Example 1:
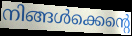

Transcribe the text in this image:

നിങ്ങൾക്കെന്റെ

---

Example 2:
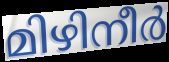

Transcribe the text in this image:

മിഴിനീർ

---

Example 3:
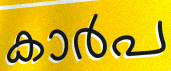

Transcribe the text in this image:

കാർപ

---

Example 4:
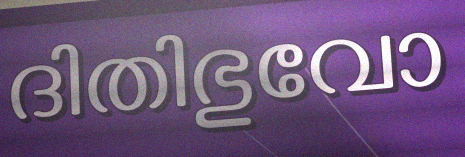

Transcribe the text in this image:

ദിതിഭുവോ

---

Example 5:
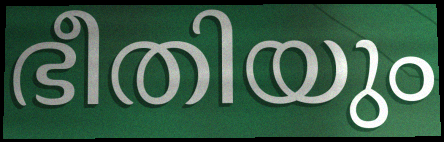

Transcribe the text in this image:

ഭീതിയും